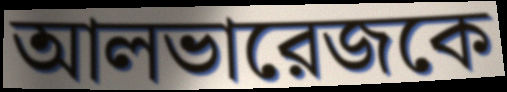
আলভারেজকে